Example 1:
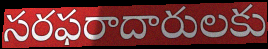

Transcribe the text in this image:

సరఫరాదారులకు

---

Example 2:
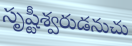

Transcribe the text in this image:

సృష్టీశ్వరుడనుచు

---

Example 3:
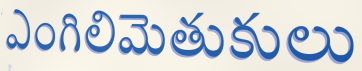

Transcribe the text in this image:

ఎంగిలిమెతుకులు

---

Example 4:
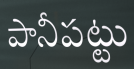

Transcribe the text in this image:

పానీపట్టు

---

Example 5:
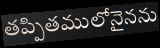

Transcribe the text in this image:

తప్పితములోనైనను